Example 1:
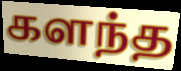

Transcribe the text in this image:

களந்த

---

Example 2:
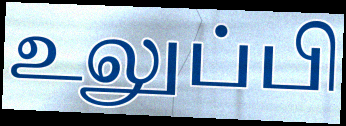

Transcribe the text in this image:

உலுப்பி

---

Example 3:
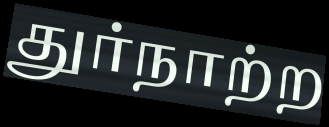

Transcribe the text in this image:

துர்நாற்ற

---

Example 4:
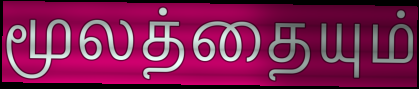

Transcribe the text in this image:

மூலத்தையும்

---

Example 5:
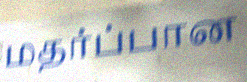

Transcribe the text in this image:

மதர்ப்பான